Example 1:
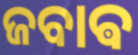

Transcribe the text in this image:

ଜବାଵ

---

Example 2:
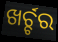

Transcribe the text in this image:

ଖର୍ଚ୍ଚର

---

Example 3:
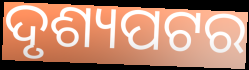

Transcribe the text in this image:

ଦୃଶ୍ୟପଟର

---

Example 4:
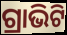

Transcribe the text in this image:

ଗ୍ରାଭିଟି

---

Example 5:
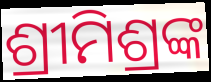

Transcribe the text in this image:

ଶ୍ରୀମିଶ୍ରଙ୍କ